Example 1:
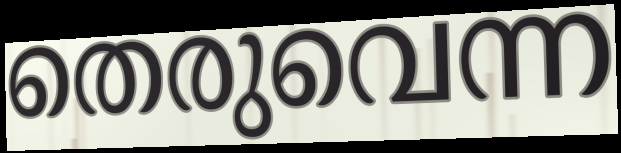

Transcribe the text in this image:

തെരുവെന്ന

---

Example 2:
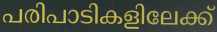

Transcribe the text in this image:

പരിപാടികളിലേക്ക്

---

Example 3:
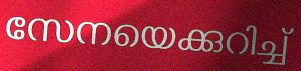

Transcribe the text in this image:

സേനയെക്കുറിച്ച്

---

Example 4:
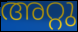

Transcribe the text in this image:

അറ്റു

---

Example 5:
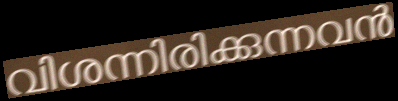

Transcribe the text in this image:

വിശന്നിരിക്കുന്നവൻ